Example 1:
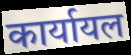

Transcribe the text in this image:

कार्यायल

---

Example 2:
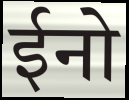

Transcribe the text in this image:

ईनो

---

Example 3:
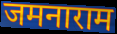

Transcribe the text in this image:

जमनाराम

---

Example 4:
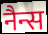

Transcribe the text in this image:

नैन्स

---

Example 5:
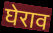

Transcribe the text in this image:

घेराव